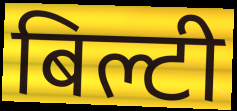
बिल्टी